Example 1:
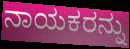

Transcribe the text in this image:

ನಾಯಕರನ್ನು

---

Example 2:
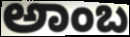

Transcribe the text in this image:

ಅಾಂಬ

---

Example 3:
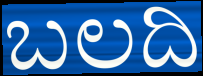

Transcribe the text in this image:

ಬಲದಿ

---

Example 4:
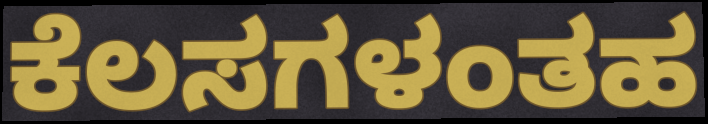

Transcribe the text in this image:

ಕೆಲಸಗಳಂತಹ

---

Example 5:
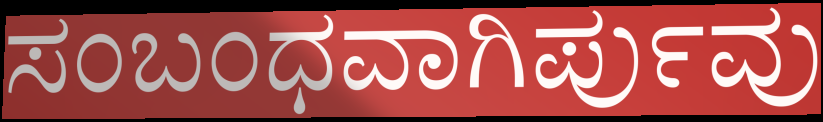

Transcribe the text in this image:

ಸಂಬಂಧವಾಗಿರ್ಪುವು